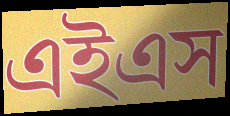
এইএস